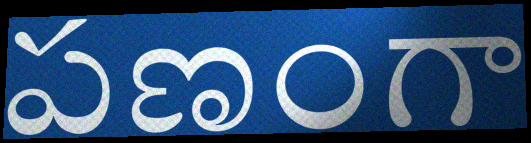
పణంగా